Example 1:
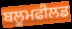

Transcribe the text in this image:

ਬਲੂਮਫੀਲਡ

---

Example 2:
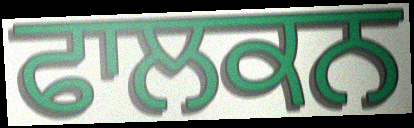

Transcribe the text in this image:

ਫਾਲਕਨ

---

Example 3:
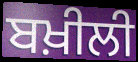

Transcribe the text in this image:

ਬਖ਼ੀਲੀ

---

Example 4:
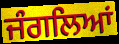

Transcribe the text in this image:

ਜੰਗਲਿਆਂ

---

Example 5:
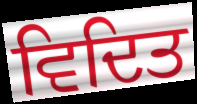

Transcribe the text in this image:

ਵਿਦਿਤ